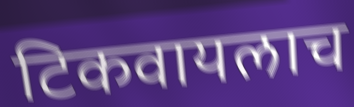
टिकवायलाच